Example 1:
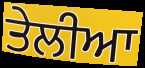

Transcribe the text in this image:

ਤੇਲੀਆ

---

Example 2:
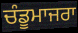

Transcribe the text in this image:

ਚੰਡੂਮਾਜਰਾ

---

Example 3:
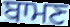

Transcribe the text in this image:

ਬਾਮਣ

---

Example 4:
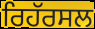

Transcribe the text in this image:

ਰਿਹੱਰਸਲ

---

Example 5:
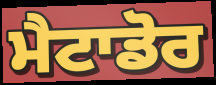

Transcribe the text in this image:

ਮੈਟਾਡੋਰ